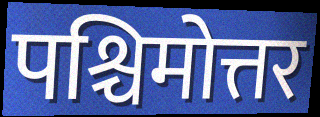
पश्चिमोत्तर